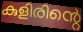
കുളിരിന്റെ